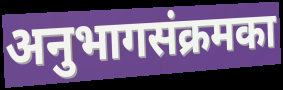
अनुभागसंक्रमका